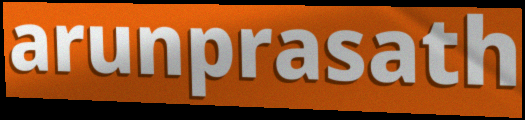
arunprasath